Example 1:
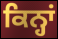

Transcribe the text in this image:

ਕਿਨ੍ਹਾਂ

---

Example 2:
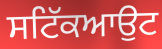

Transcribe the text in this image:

ਸਟਿੱਕਆਉਟ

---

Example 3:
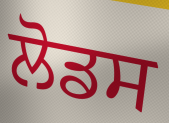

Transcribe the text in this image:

ਲੋਡਸ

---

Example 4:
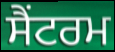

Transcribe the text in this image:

ਸੈਂਟਰਮ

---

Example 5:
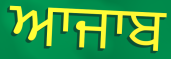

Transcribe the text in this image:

ਆਜਾਬ